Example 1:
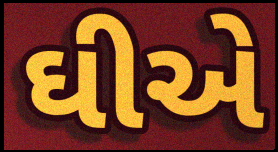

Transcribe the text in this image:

ઘીએ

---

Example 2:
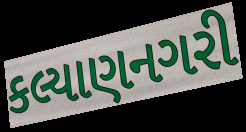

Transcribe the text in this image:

કલ્યાણનગરી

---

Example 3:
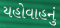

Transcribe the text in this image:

યહોવાહનું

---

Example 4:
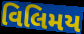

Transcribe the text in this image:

વિલિમય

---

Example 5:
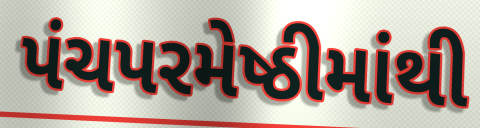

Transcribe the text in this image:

પંચપરમેષ્ઠીમાંથી